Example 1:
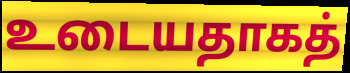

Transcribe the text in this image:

உடையதாகத்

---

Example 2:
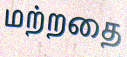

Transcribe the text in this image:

மற்றதை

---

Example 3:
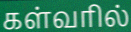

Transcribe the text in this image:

கள்வரில்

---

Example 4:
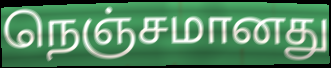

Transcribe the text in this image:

நெஞ்சமானது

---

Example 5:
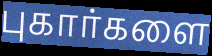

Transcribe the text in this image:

புகார்களை